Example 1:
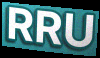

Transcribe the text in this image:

RRU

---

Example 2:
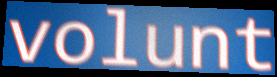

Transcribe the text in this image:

volunt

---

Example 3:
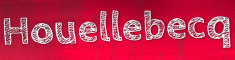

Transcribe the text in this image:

Houellebecq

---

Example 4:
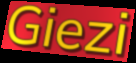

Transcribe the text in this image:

Giezi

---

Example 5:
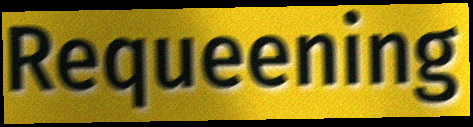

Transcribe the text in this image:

Requeening